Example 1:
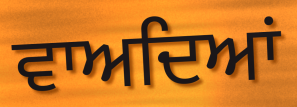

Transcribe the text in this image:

ਵਾਅਦਿਆਂ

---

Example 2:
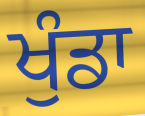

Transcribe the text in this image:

ਖੁੰਡਾ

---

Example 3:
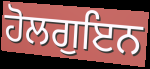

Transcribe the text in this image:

ਹੋਲਗੁਇਨ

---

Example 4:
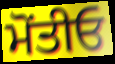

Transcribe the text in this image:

ਮੋਂਤੀਓ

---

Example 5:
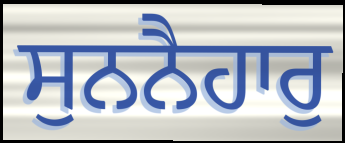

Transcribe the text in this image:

ਸੁਨਨੈਹਾਰੁ